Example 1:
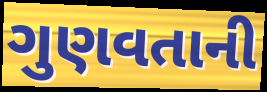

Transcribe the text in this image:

ગુણવતાની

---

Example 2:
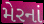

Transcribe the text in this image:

મેરનાં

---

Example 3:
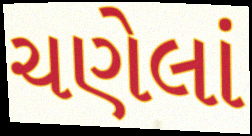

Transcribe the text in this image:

ચણેલાં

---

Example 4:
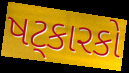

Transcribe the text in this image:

ષટ્કારકો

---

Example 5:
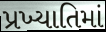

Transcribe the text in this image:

પ્રખ્યાતિમાં